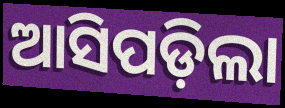
ଆସିପଡ଼ିଲା